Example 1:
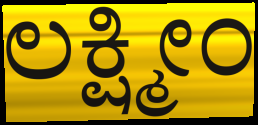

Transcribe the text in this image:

ಲಕ್ಷ್ಮೀಂ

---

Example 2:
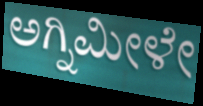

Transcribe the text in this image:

ಅಗ್ನಿಮೀಳೇ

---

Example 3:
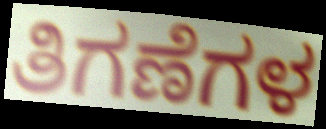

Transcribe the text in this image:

ತಿಗಣೆಗಳ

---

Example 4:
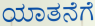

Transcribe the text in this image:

ಯಾತನೆಗೆ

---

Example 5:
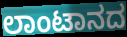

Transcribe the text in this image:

ಲಾಂಟಾನದ